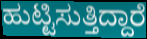
ಹುಟ್ಟಿಸುತ್ತಿದ್ದಾರೆ